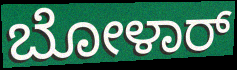
ಬೋಳಾರ್